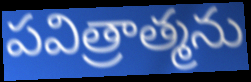
పవిత్రాత్మను